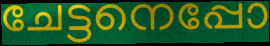
ചേട്ടനെപ്പോ